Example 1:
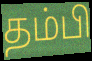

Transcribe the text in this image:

தம்பி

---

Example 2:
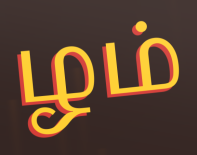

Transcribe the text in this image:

ழம்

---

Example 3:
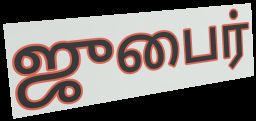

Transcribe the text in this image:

ஜுபைர்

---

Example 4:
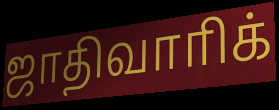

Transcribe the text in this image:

ஜாதிவாரிக்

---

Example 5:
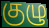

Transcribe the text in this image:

குழு